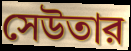
সেউতার